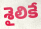
శైలికే